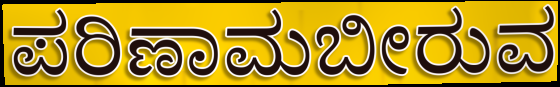
ಪರಿಣಾಮಬೀರುವ